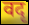
वदृ